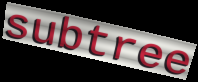
subtree